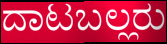
ದಾಟಬಲ್ಲರು